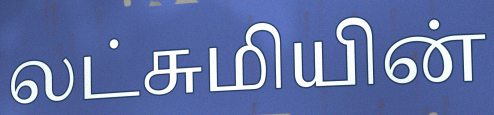
லட்சுமியின்